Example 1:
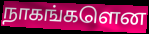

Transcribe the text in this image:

நாகங்களென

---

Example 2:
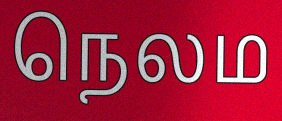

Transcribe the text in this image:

நெலம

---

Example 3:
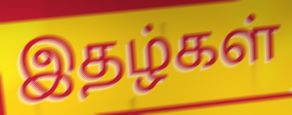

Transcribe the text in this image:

இதழ்கள்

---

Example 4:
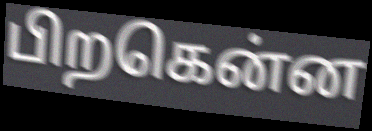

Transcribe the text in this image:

பிறகென்ன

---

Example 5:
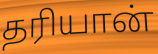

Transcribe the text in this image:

தரியான்